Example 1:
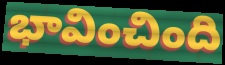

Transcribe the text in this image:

భావించింది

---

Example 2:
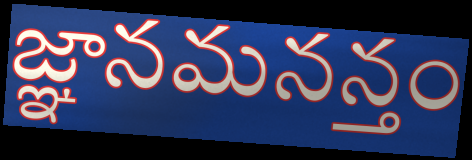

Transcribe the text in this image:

జ్ఞానమనన్తం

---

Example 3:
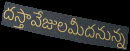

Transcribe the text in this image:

దస్తావేజులమీదనున్న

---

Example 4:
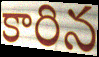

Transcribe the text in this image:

కారిన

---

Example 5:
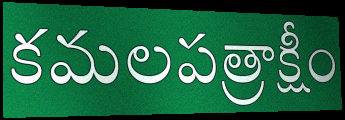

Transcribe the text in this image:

కమలపత్రాక్షీం